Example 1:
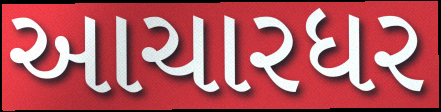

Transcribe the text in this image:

આચારધર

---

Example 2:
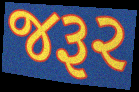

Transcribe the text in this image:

જરૂર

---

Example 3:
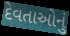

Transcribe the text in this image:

દેવતાઓનું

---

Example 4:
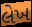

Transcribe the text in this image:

લેખ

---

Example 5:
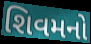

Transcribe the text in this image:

શિવમનો